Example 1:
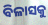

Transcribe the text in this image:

ବିଳାସକୁ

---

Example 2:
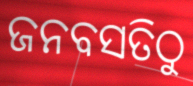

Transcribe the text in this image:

ଜନବସତିଠୁ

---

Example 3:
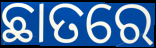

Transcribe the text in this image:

ଛାତରେ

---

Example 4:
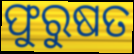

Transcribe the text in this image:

ଫୁରୁଷତ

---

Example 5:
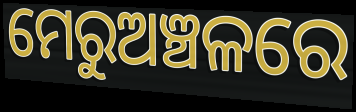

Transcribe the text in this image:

ମେରୁଅଞ୍ଚଳରେ